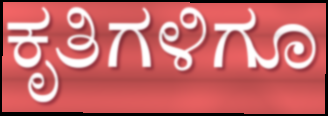
ಕೃತಿಗಳಿಗೂ